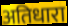
अतिधारा